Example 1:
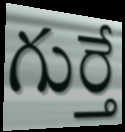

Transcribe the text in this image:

గుర్తే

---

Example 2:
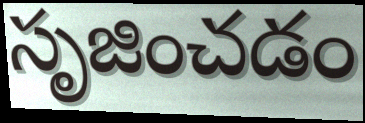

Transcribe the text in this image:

సృజించడం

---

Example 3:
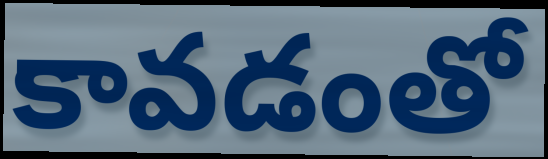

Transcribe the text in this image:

కావడంతో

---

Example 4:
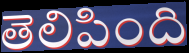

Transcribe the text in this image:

తెలిపింది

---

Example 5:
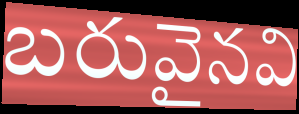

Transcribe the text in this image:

బరువైనవి